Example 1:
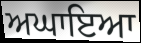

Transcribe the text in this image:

ਅਘਾਇਆ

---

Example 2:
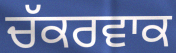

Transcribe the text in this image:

ਚੱਕਰਵਾਕ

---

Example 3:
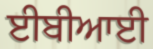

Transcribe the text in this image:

ਈਬੀਆਈ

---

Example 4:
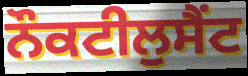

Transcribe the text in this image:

ਨੌਕਟੀਲੁਸੈਂਟ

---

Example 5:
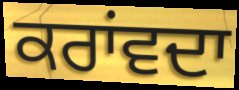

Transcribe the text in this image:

ਕਰਾਂਵਦਾ